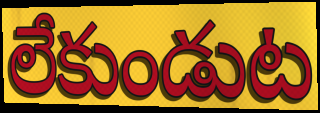
లేకుండుట